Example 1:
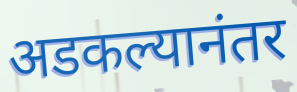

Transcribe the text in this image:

अडकल्यानंतर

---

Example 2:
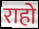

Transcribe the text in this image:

राहो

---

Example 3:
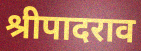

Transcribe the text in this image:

श्रीपादराव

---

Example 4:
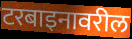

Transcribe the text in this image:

टरबाइनावरील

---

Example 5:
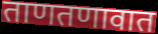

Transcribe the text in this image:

ताणतणावात